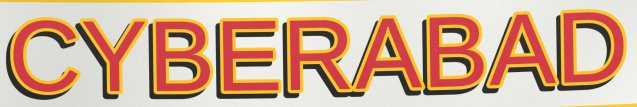
CYBERABAD